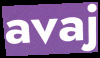
avaj